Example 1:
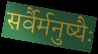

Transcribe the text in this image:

सर्वैर्मनुष्यैः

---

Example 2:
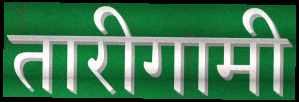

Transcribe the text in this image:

तारीगामी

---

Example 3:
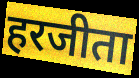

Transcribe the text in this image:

हरजीता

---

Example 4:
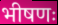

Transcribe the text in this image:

भीषणः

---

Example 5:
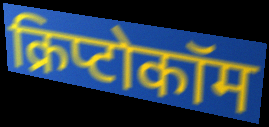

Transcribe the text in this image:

क्रिप्टोकॉम